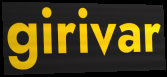
girivar